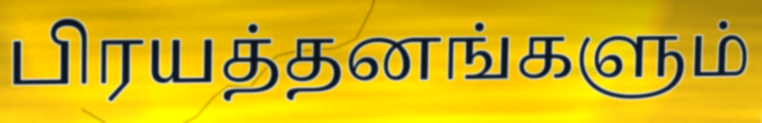
பிரயத்தனங்களும்